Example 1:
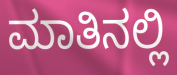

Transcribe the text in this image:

ಮಾತಿನಲ್ಲಿ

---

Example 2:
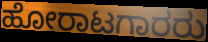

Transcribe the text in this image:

ಹೋರಾಟಗಾರರು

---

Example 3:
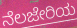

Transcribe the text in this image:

ನೆಲಜೇರಿಯ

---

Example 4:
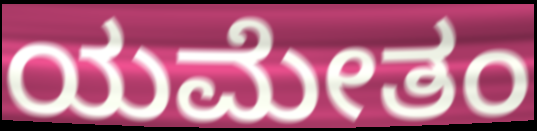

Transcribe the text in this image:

ಯಮೇತಂ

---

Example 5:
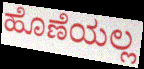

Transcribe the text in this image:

ಹೊಣೆಯಲ್ಲ